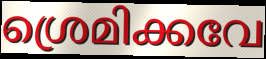
ശ്രെമിക്കവേ